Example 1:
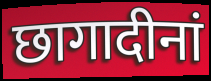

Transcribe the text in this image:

छागादीनां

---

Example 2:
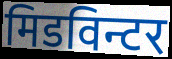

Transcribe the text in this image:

मिडविन्टर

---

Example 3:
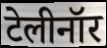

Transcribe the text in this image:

टेलीनॉर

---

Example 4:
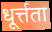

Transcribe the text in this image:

धूर्त्तता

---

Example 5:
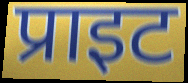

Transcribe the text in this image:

प्राइट